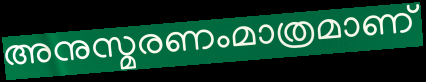
അനുസ്മരണംമാത്രമാണ്